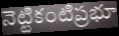
నెట్టికంటిప్రభూ